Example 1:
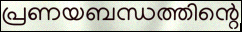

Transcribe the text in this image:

പ്രണയബന്ധത്തിന്റെ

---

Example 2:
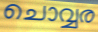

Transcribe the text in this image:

ചൊവ്വര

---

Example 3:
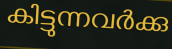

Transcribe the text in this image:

കിട്ടുന്നവർക്കു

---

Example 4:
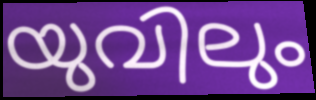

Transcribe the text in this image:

യുവിലും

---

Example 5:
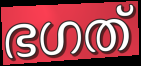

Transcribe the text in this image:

ഭഗത്